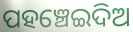
ପହଞ୍ଚେଇଦିଅ